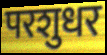
परशुधर